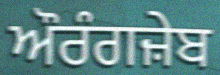
ਔਰੰਗਜ਼ੇਬ